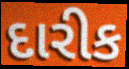
દારીક